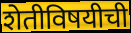
शेतीविषयीची